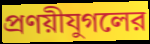
প্রণয়ীযুগলের